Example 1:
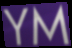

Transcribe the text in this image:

YM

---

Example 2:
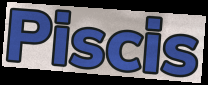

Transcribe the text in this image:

Piscis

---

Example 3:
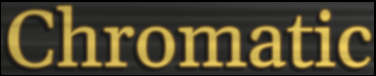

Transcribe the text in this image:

Chromatic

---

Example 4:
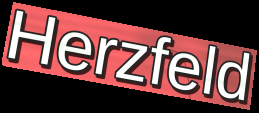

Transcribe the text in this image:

Herzfeld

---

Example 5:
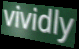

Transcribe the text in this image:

vividly